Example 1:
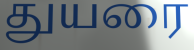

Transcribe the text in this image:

துயரை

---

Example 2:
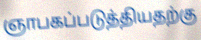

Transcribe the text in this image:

ஞாபகப்படுத்தியதற்கு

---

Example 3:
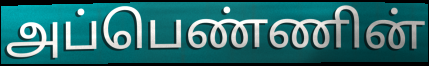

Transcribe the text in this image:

அப்பெண்ணின்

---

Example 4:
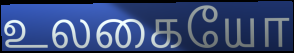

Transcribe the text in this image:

உலகையோ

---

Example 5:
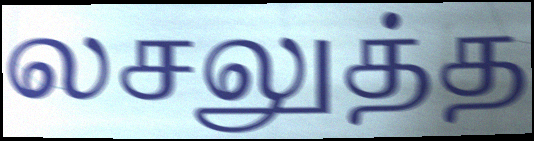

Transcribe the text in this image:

லசலுத்த